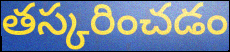
తస్కరించడం